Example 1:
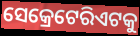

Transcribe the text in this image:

ସେକ୍ରେଟେରିଏଟକୁ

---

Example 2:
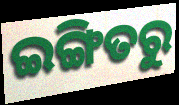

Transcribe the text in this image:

ଇଙ୍ଗିତରୁ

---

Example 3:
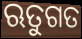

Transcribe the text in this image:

ଋତୁଗତ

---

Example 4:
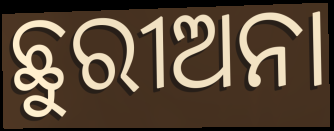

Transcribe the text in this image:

ଛୁରୀଅନା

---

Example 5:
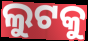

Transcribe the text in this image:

ଲୁଟକୁ